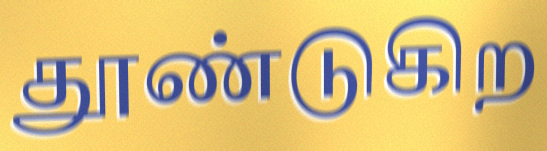
தூண்டுகிற